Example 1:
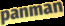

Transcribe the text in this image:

panman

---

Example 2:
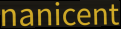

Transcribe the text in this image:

nanicent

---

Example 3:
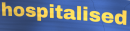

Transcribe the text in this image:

hospitalised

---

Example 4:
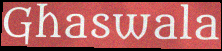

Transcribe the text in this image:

Ghaswala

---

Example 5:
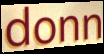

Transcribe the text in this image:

donn